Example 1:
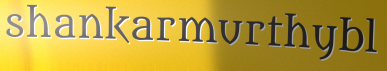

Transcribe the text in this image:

shankarmurthybl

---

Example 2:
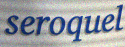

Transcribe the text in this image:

seroquel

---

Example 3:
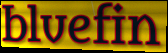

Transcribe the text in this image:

bluefin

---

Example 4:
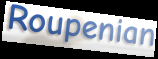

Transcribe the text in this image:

Roupenian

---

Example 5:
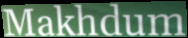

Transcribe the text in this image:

Makhdum